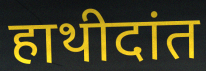
हाथीदांत